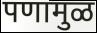
पणामुळ